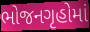
ભોજનગૃહોમાં